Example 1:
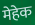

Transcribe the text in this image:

मेहेक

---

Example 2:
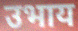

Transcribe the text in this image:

उभाय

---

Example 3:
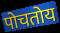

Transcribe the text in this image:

पोचतोय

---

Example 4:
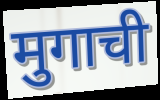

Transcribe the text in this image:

मुगाची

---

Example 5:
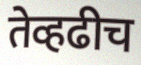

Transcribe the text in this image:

तेव्हढीच